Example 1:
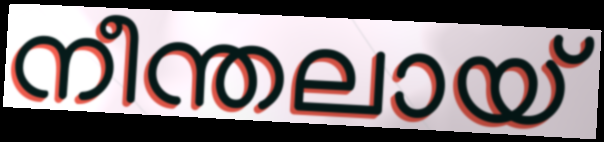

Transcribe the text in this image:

നീന്തലായ്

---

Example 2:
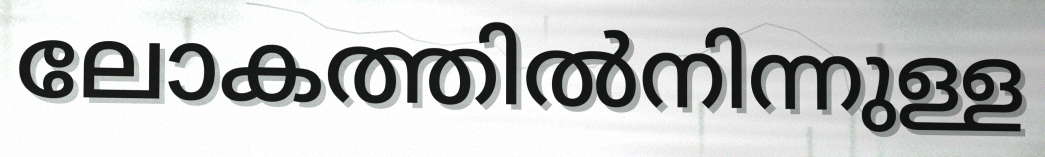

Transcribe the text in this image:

ലോകത്തിൽനിന്നുള്ള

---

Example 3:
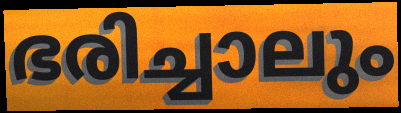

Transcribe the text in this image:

ഭരിച്ചാലും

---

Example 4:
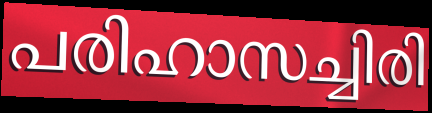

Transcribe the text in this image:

പരിഹാസച്ചിരി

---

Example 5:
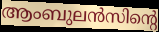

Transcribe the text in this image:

ആംബുലൻസിന്റെ